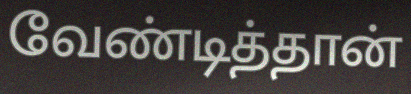
வேண்டித்தான்